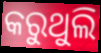
କରୁଥୁଲି